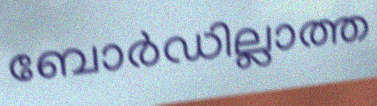
ബോർഡില്ലാത്ത